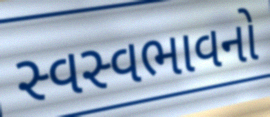
સ્વસ્વભાવનો